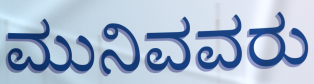
ಮುನಿವವರು